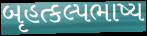
બૃહત્કલ્પભાષ્ય